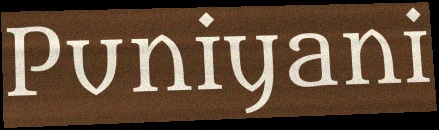
Puniyani